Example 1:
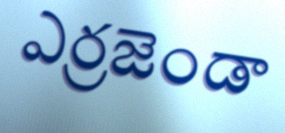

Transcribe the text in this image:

ఎర్రజెండా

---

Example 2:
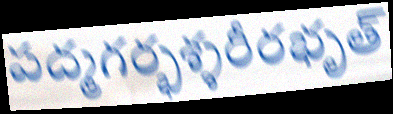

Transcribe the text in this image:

పద్మగర్భశ్శరీరభృత్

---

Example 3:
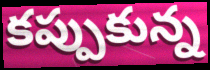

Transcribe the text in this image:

కప్పుకున్న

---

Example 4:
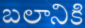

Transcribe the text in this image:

బలానికి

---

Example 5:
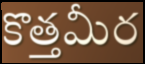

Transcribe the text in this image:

కొత్తమీర